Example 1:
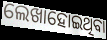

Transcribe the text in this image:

ଲେଖାହୋଇଥିବା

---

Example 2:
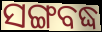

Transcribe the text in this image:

ସଙ୍ଗବଦ୍ଧ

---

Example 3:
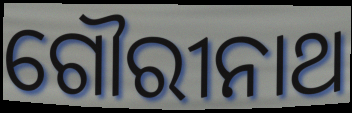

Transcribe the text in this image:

ଗୌରୀନାଥ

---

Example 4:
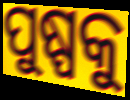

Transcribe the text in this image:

ପୁଷ୍ପକୁ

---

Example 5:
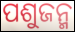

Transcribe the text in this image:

ପଶୁଜନ୍ମ